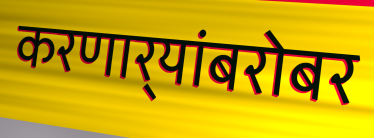
करणार्‍यांबरोबर